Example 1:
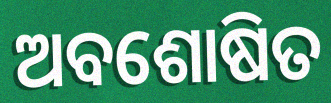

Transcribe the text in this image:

ଅବଶୋଷିତ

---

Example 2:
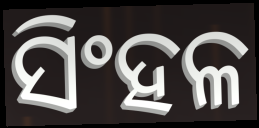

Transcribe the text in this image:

ସିଂହଳ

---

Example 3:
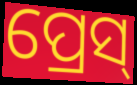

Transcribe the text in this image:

ପ୍ରେସ୍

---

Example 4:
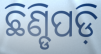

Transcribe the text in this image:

ଛିଣ୍ଡିପଡ଼ି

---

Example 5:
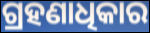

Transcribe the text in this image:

ଗ୍ରହଣାଧିକାର